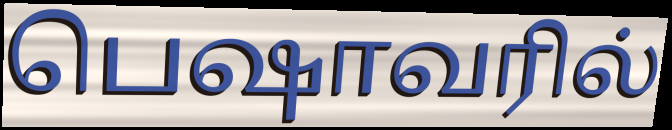
பெஷாவரில்